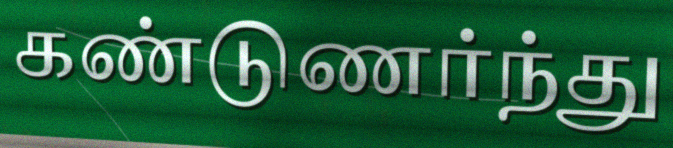
கண்டுணர்ந்து